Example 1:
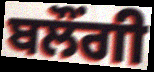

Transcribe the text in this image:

ਬਲੌਂਗੀ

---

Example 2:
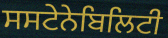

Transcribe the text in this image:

ਸਸਟੇਨੇਬਿਲਿਟੀ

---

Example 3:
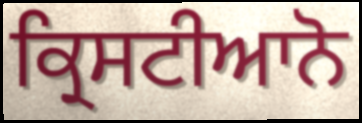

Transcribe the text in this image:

ਕ੍ਰਿਸਟੀਆਨੋ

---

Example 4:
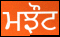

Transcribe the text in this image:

ਮਝੌਟ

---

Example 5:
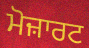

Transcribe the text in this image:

ਮੋਜ਼ਾਰਟ